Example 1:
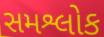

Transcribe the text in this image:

સમશ્લોક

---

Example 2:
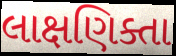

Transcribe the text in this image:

લાક્ષણિક્તા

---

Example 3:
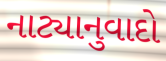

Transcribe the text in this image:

નાટ્યાનુવાદો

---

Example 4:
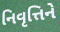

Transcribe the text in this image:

નિવૃત્તિને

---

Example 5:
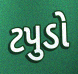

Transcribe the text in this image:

ટપુડો